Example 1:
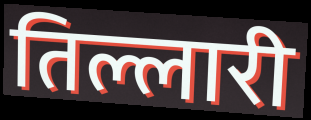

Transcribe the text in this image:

तिल्लारी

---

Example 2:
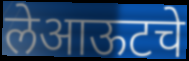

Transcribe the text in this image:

लेआऊटचे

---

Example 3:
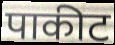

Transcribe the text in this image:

पाकीट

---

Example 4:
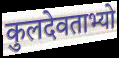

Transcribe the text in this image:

कुलदेवताभ्यो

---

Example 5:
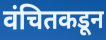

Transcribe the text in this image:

वंचितकडून